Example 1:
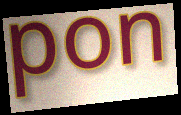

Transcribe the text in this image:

pon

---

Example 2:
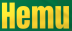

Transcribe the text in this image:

Hemu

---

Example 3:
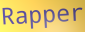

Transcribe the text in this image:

Rapper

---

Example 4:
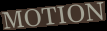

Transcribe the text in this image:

MOTION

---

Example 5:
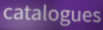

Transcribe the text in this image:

catalogues